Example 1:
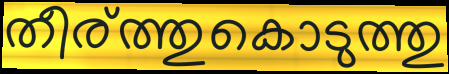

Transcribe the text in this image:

തീര്ത്തുകൊടുത്തു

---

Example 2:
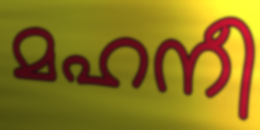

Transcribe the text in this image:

മഹനീ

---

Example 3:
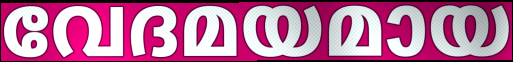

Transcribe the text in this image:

വേദമയമായ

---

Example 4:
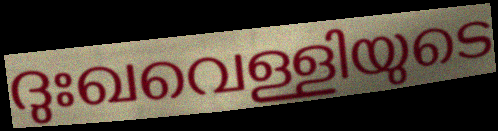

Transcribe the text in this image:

ദുഃഖവെള്ളിയുടെ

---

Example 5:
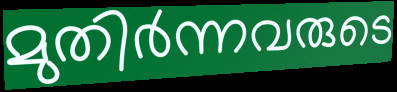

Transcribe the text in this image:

മുതിർന്നവരുടെ